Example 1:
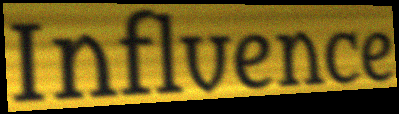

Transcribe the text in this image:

Influence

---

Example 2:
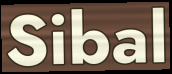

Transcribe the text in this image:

Sibal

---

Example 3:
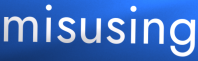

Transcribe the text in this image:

misusing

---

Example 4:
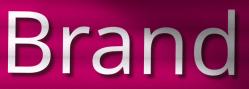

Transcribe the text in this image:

Brand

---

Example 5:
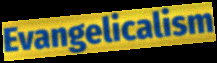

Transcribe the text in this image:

Evangelicalism